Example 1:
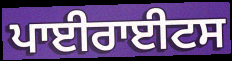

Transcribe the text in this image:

ਪਾਈਰਾਈਟਸ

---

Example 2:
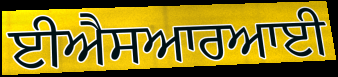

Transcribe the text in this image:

ਈਐਸਆਰਆਈ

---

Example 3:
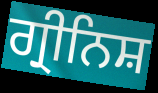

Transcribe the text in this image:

ਗ੍ਰੀਨਿਸ਼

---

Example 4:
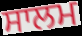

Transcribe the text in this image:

ਸਾਲਮ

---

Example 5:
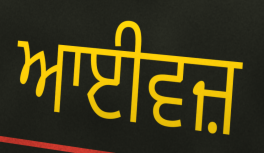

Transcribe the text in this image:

ਆਈਵਜ਼